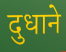
दुधाने